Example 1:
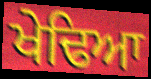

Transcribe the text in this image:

ਖੇਢਿਆ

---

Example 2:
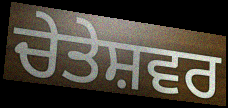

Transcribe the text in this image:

ਚੇਤੇਸ਼ਵਰ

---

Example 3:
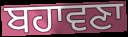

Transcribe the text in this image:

ਬਹਾਵਣਾ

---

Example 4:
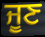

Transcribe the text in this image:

ਜੂਣ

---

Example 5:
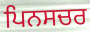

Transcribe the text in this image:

ਪਿਨਸਚਰ